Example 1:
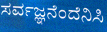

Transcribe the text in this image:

ಸರ್ವಜ್ಞನೆಂದೆನಿಸಿ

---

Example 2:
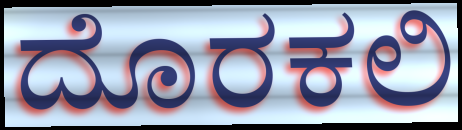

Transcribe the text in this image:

ದೊರಕಲಿ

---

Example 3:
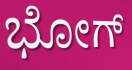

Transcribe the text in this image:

ಭೋಗ್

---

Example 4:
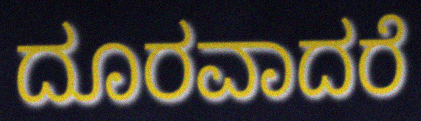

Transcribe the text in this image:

ದೂರವಾದರೆ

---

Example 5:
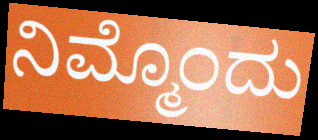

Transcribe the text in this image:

ನಿಮ್ಮೊಂದು